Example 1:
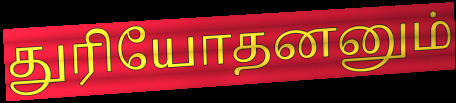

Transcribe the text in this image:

துரியோதனனும்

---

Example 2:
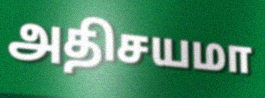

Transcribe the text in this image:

அதிசயமா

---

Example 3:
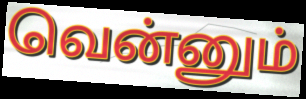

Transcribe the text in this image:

வென்னும்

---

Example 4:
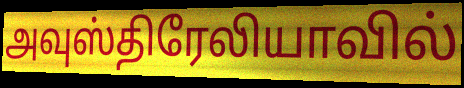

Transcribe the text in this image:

அவுஸ்திரேலியாவில்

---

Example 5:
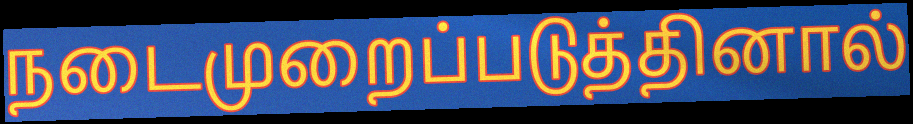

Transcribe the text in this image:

நடைமுறைப்படுத்தினால்